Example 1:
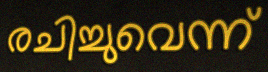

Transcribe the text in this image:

രചിച്ചുവെന്ന്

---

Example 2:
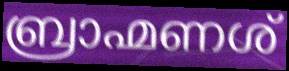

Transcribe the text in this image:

ബ്രാഹ്മണശ്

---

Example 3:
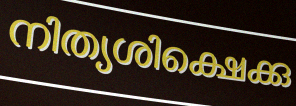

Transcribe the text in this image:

നിത്യശിക്ഷെക്കു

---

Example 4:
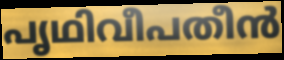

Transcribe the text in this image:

പൃഥിവീപതീൻ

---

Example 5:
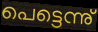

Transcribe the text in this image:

പെട്ടെന്നു്